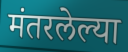
मंतरलेल्या